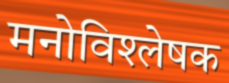
मनोविश्लेषक